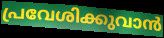
പ്രവേശിക്കുവാൻ